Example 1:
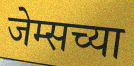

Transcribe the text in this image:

जेम्सच्या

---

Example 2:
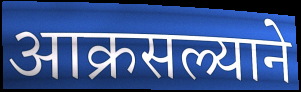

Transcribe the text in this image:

आक्रसल्याने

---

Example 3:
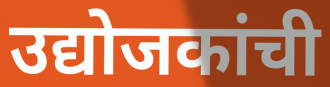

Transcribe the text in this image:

उद्योजकांची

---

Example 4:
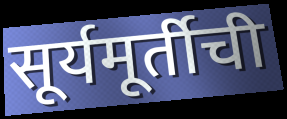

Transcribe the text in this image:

सूर्यमूर्तीची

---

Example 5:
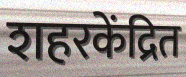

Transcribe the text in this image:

शहरकेंद्रित